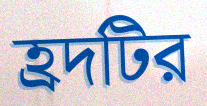
হ্রদটির